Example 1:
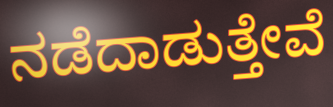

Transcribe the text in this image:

ನಡೆದಾಡುತ್ತೇವೆ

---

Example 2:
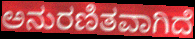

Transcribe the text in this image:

ಅನುರಣಿತವಾಗಿದೆ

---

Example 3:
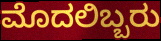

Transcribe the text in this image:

ಮೊದಲಿಬ್ಬರು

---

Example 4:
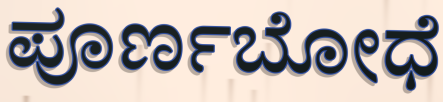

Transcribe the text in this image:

ಪೂರ್ಣಬೋಧೆ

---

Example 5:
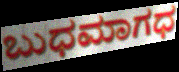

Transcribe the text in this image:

ಬುಧಮಾಗಧ